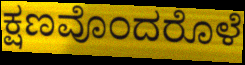
ಕ್ಷಣವೊಂದರೊಳೆ